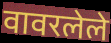
वावरलेले